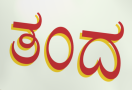
ತಂದ